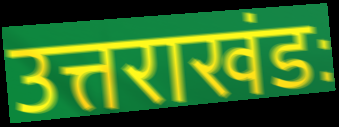
उत्तराखंडः